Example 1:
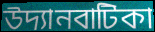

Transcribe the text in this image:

উদ্যানবাটিকা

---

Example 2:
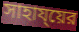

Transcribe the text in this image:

সাহায্য়ের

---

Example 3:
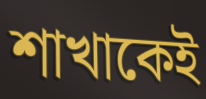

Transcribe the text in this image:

শাখাকেই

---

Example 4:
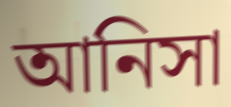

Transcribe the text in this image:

আনিসা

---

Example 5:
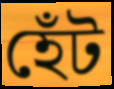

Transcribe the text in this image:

হেঁট